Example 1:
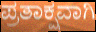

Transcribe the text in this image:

ಪ್ರತಾಕ್ಷವಾಗಿ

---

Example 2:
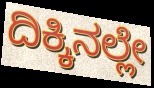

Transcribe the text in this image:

ದಿಕ್ಕಿನಲ್ಲೇ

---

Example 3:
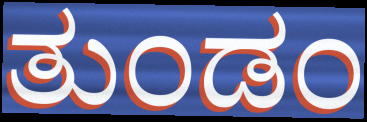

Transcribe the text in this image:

ತುಂಡಂ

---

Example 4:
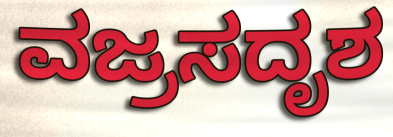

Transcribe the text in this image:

ವಜ್ರಸದೃಶ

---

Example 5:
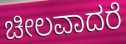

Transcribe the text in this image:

ಚೀಲವಾದರೆ